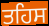
ਤਹਿਸ